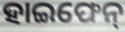
ହାଇଫେନ୍